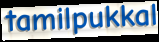
tamilpukkal